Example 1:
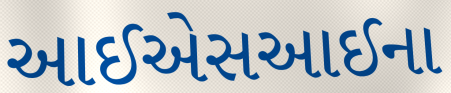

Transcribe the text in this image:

આઈએસઆઈના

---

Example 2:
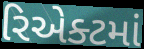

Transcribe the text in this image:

રિએક્ટમાં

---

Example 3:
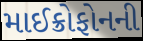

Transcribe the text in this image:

માઈક્રોફોનની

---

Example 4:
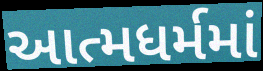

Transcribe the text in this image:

આત્મધર્મમાં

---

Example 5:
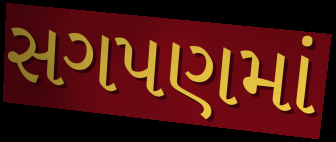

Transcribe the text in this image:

સગપણમાં